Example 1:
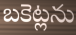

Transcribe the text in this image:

బకెట్లను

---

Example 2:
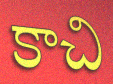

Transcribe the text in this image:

కాచి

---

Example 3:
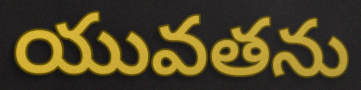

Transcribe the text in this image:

యువతను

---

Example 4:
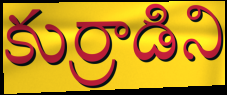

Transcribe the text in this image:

కుర్రాడిని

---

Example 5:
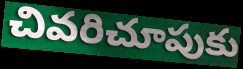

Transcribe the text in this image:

చివరిచూపుకు